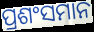
ପ୍ରଶଂସମାନ